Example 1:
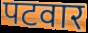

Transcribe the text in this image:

पटवार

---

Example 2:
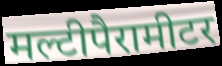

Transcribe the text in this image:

मल्टीपैरामीटर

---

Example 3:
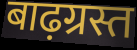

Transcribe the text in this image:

बाढ़ग्रस्त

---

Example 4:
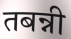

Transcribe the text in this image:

तबन्नी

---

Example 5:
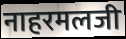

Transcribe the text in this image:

नाहरमलजी